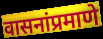
वासनांप्रमाणे